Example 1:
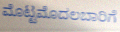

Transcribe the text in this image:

ಮೊಟ್ಟಮೊದಲಬಾರಿಗೆ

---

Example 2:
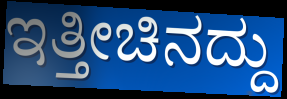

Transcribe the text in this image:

ಇತ್ತೀಚಿನದ್ದು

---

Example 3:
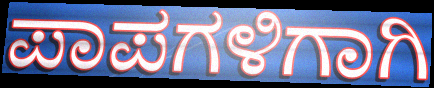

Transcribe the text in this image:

ಪಾಪಗಳಿಗಾಗಿ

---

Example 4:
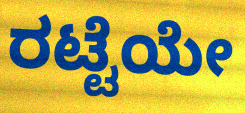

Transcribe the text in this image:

ರಟ್ಟೆಯೇ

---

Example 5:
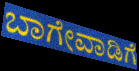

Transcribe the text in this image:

ಬಾಗೇವಾಡಿಗೆ